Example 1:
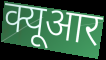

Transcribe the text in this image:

क्यूआर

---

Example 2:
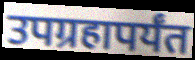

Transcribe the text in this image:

उपग्रहापर्यंत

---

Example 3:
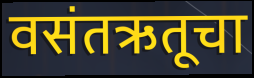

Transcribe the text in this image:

वसंतऋतूचा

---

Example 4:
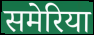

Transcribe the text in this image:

समेरिया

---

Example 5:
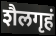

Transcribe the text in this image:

शैलगृहं